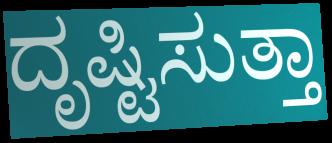
ದೃಷ್ಟಿಸುತ್ತಾ